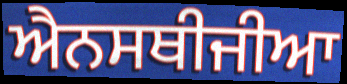
ਐਨਸਥੀਜੀਆ